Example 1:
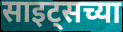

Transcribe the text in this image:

साइट्सच्या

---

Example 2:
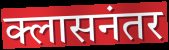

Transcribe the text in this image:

क्लासनंतर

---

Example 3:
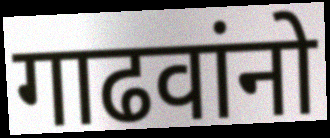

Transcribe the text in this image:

गाढवांनो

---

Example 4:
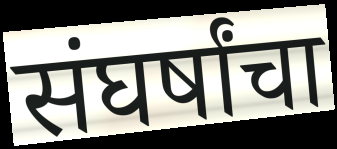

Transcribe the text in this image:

संघर्षांचा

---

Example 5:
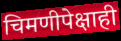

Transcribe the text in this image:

चिमणीपेक्षाही